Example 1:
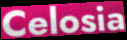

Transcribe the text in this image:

Celosia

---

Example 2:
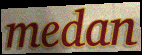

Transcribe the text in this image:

medan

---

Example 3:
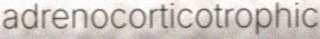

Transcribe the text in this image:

adrenocorticotrophic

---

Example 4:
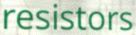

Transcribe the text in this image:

resistors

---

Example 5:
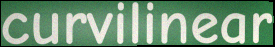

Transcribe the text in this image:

curvilinear